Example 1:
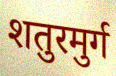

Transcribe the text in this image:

शतुरमुर्ग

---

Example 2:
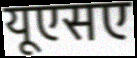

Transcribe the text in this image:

यूएसए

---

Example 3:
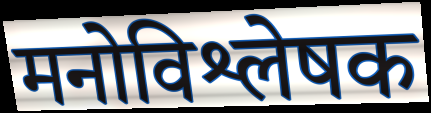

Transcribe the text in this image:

मनोविश्लेषक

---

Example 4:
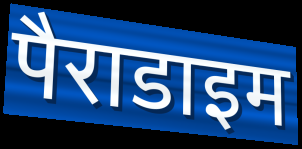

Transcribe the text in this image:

पैराडाइम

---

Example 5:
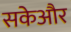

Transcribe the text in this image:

सकेऔर